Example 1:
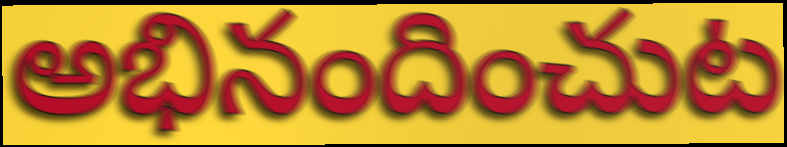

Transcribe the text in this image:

అభినందించుట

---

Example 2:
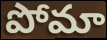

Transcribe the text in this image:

పోమా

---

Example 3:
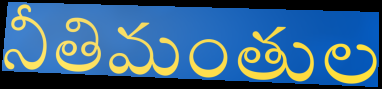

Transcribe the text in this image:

నీతిమంతుల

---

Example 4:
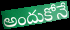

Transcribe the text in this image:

అందుకోనే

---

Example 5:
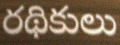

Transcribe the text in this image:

రథికులు